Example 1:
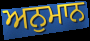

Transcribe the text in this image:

ਅਨੁਮਾਨ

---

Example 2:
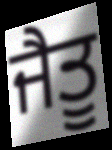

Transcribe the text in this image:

ਜੈਤੂ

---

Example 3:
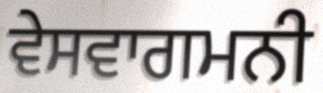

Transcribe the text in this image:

ਵੇਸਵਾਗਮਨੀ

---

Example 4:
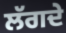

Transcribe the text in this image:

ਲੱਗਦੇ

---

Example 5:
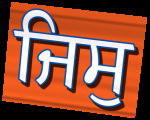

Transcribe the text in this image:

ਜਿਸੁ